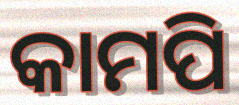
କାମପି